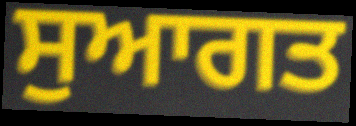
ਸੁਆਗਤ